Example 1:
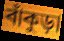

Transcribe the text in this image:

বাঁকুড়া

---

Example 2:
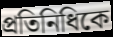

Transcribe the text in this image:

প্রতিনিধিকে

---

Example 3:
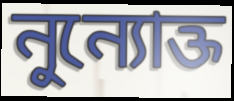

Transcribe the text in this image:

নুন্যোক্ত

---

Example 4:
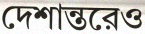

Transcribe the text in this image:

দেশান্তরেও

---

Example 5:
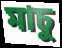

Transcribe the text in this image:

মাচু